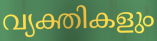
വ്യക്തികളും